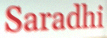
Saradhi